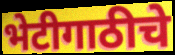
भेटीगाठीचे